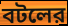
বটলের